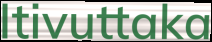
Itivuttaka